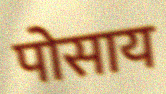
पोसाय